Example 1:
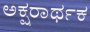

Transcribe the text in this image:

ಅಕ್ಷರಾರ್ಥಕ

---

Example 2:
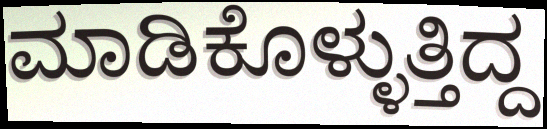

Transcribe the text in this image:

ಮಾಡಿಕೊಳ್ಳುತ್ತಿದ್ದ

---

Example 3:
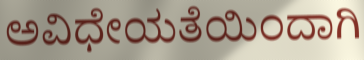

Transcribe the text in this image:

ಅವಿಧೇಯತೆಯಿಂದಾಗಿ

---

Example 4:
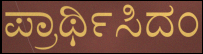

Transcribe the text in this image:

ಪ್ರಾರ್ಥಿಸಿದಂ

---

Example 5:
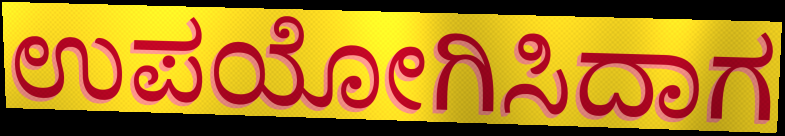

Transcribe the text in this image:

ಉಪಯೋಗಿಸಿದಾಗ